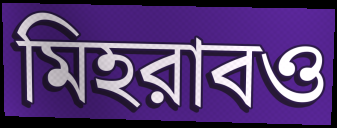
মিহরাবও